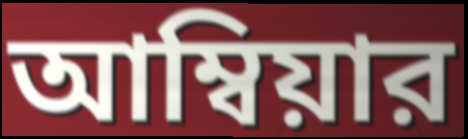
আম্বিয়ার